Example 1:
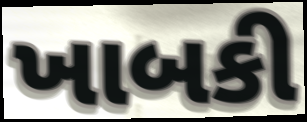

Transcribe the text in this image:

ખાબકી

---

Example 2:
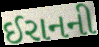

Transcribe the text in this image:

ઈરાનની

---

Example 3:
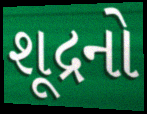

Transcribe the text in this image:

શૂદ્રનો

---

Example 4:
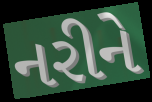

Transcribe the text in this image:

નરીને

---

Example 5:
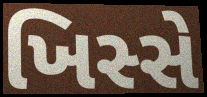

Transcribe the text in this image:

ખિસ્સે